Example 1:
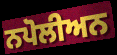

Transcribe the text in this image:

ਨਪੋਲੀਅਨ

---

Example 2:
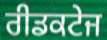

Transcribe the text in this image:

ਰੀਡਕਟੇਜ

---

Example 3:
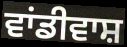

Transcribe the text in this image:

ਵਾਂਡੀਵਾਸ਼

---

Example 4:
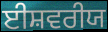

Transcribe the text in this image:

ਈਸ਼ਵਰੀਯ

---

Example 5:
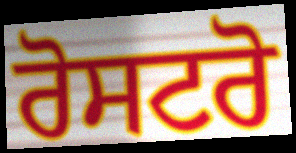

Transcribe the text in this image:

ਰੋਸਟਰੋ